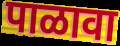
पाळावा